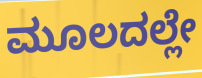
ಮೂಲದಲ್ಲೇ